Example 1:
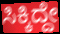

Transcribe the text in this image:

ಸಿಕ್ಕಿದ್ದೇ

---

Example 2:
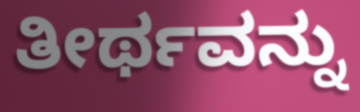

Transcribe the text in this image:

ತೀರ್ಥವನ್ನು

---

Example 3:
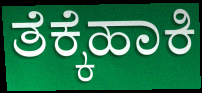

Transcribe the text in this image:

ತೆಕ್ಕೆಹಾಕಿ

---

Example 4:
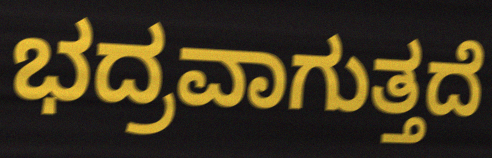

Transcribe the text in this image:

ಭದ್ರವಾಗುತ್ತದೆ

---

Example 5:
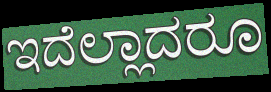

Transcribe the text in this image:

ಇದೆಲ್ಲಾದರೂ